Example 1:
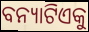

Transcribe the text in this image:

ବନ୍ୟାଟିଏକୁ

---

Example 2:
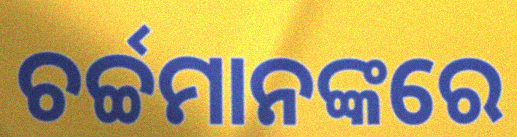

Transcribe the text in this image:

ଚର୍ଚ୍ଚମାନଙ୍କରେ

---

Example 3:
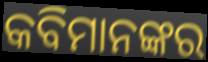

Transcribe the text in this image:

କବିମାନଙ୍କର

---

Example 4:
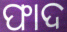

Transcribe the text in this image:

ଫାଦ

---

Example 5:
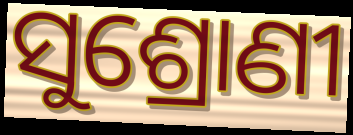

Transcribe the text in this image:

ସୁଶ୍ରୋଣୀ